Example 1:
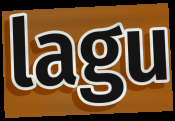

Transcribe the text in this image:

lagu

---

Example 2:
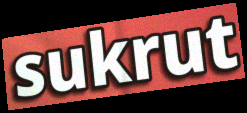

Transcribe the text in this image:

sukrut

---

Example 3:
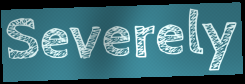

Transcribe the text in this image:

Severely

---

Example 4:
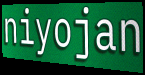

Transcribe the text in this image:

niyojan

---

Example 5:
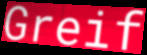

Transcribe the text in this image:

Greif